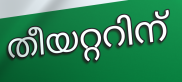
തീയറ്ററിന്